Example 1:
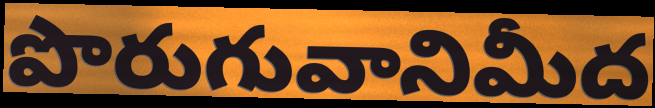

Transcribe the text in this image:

పొరుగువానిమీద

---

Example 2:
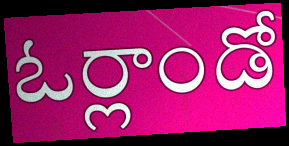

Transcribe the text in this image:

ఓర్లాండో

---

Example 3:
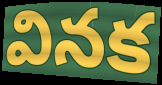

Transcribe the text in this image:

వినక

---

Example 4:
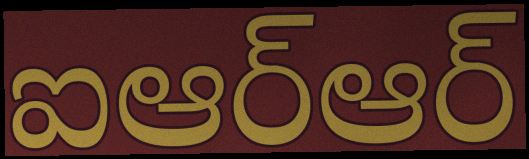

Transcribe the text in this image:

ఐఆర్ఆర్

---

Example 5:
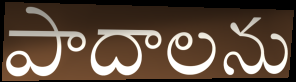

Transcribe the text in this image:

పాదాలను